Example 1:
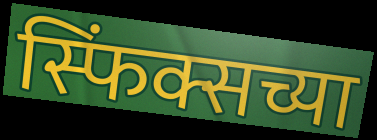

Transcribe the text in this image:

स्फिंक्सच्या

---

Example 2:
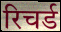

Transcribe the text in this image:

रिचर्ड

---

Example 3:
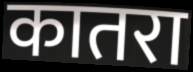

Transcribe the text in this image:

कातरा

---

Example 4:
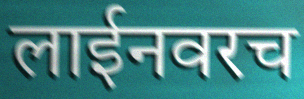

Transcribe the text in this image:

लाईनवरच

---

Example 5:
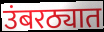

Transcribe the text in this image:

उंबरठ्यात